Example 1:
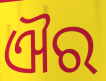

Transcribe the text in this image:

ଐର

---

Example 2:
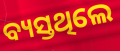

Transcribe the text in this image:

ବ୍ୟସ୍ତଥିଲେ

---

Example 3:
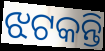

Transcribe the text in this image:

ଝଟକନ୍ତି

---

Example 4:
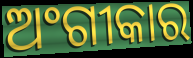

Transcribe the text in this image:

ଅଂଗୀକାର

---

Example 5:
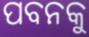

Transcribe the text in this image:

ପବନକୁ